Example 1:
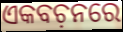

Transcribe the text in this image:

ଏକବଚ଼ନରେ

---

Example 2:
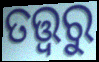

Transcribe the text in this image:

ତତ୍ତ୍ୱରୁ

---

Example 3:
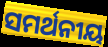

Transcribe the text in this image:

ସମର୍ଥନୀୟ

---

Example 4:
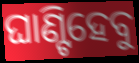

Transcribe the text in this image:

ଘାଣ୍ଟିହେବୁ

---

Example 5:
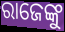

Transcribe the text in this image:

ରାଜେଙ୍କୁ